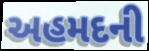
અહમદની